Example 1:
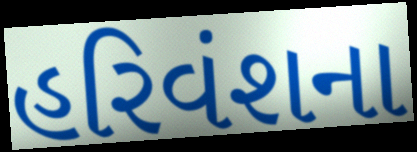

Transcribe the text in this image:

હરિવંશના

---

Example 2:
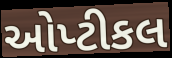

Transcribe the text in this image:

ઓપ્ટીકલ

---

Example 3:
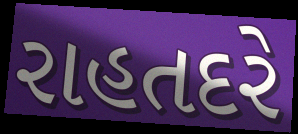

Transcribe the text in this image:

રાહતદરે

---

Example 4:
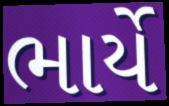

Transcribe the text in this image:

ભાર્યે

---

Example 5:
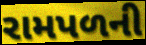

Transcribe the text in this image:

રામપળની